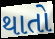
થાતો